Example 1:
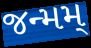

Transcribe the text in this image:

જન્મમ્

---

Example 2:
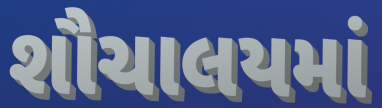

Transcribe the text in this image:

શૌચાલયમાં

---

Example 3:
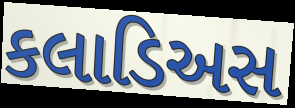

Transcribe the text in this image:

કલાડિઅસ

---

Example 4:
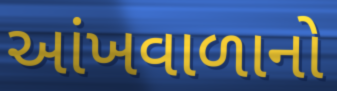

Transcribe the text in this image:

આંખવાળાનો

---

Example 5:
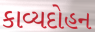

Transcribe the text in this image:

કાવ્યદોહન